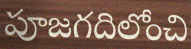
పూజగదిలోంచి